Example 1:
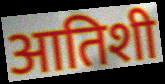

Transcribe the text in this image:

आतिशी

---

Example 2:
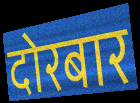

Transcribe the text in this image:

दोरबार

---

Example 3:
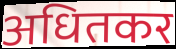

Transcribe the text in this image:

अधितकर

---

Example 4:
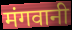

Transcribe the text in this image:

मंगवानी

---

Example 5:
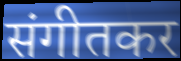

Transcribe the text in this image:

संगीतकर